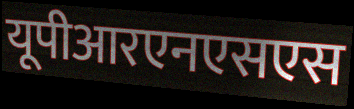
यूपीआरएनएसएस